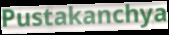
Pustakanchya